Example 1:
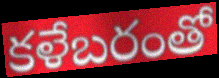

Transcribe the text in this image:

కళేబరంతో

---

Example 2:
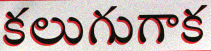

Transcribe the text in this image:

కలుగుగాక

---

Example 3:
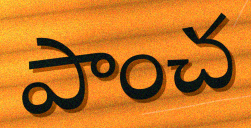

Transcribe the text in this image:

పాంచ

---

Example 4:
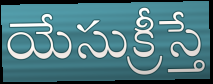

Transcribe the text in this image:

యేసుక్రీస్తే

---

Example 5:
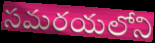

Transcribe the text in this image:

సమరయలోని